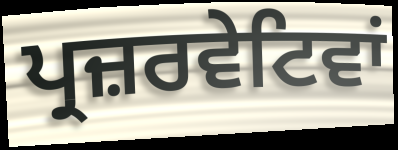
ਪ੍ਰਜ਼ਰਵੇਟਿਵਾਂ